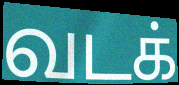
வடக்